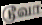
டூவா